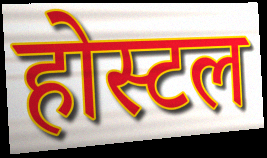
होस्टल